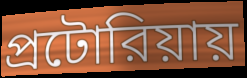
প্রটোরিয়ায়